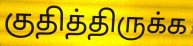
குதித்திருக்க